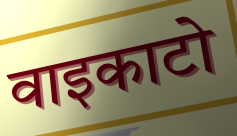
वाइकाटो